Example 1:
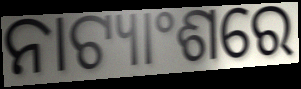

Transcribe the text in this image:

ନାଟ୍ୟାଂଶରେ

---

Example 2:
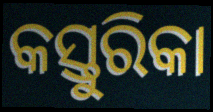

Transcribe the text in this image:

କସ୍ତୁରିକା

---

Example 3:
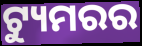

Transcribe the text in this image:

ଟ୍ୟୁମରର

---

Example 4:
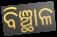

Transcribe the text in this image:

ବିଞ୍ଛାଳ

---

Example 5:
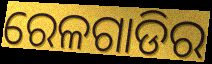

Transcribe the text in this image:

ରେଳଗାଡିର